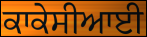
ਕਾਕੇਸੀਆਈ